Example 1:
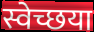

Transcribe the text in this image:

स्वेच्छया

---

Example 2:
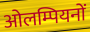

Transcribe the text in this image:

ओलम्पियनों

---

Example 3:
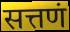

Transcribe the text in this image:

सत्तणं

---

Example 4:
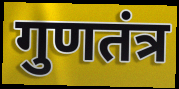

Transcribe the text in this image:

गुणतंत्र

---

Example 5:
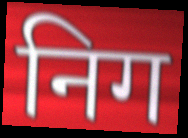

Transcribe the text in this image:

निग